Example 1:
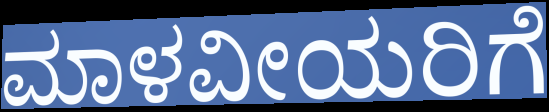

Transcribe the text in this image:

ಮಾಳವೀಯರಿಗೆ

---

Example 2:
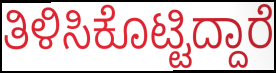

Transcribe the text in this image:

ತಿಳಿಸಿಕೊಟ್ಟಿದ್ದಾರೆ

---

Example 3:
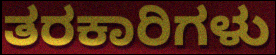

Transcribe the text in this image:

ತರಕಾರಿಗಳು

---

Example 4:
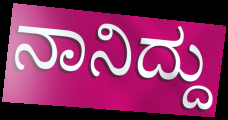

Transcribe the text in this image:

ನಾನಿದ್ದು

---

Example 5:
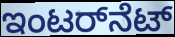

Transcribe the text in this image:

ಇಂಟರ್‌ನೆಟ್